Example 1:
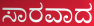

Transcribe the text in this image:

ಸಾರವಾದ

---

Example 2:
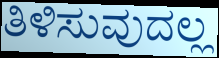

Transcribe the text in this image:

ತಿಳಿಸುವುದಲ್ಲ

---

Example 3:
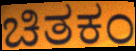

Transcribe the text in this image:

ಚಿತಕಂ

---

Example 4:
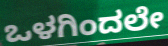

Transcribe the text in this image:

ಒಳಗಿಂದಲೇ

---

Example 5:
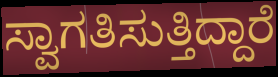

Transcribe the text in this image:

ಸ್ವಾಗತಿಸುತ್ತಿದ್ದಾರೆ